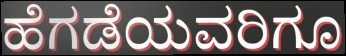
ಹೆಗಡೆಯವರಿಗೂ